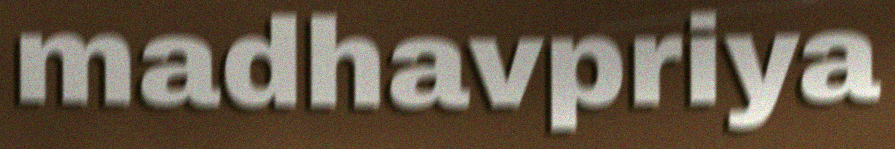
madhavpriya